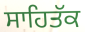
ਸਾਹਿਤੱਕ